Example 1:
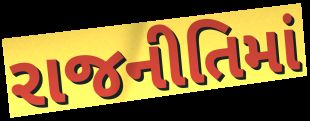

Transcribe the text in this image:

રાજનીતિમાં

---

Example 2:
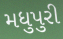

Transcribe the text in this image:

મધુપુરી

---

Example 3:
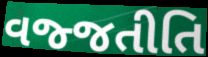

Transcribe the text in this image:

વજ્જતીતિ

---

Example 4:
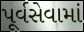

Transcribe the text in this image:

પૂર્વસેવામાં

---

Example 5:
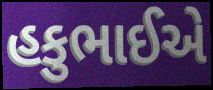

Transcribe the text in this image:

હકુભાઈએ